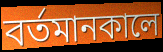
বর্তমানকালে